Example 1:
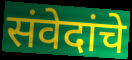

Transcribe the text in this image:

संवेदांचे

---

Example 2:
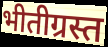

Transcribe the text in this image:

भीतीग्रस्त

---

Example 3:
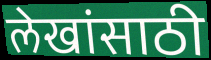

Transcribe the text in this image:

लेखांसाठी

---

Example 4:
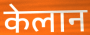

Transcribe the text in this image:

केलान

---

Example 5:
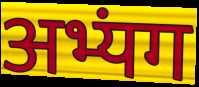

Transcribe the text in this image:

अभ्यंग